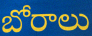
బోరాలు